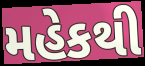
મહેકથી